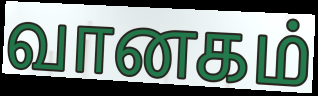
வானகம்